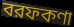
বরফকণা